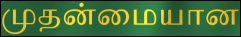
முதன்மையான